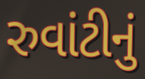
રુવાંટીનું